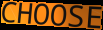
CHOOSE